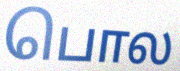
பொல